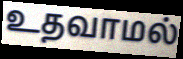
உதவாமல்